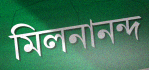
মিলনানন্দ